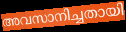
അവസാനിച്ചതായി